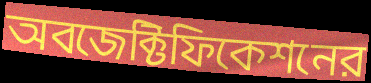
অবজেক্টিফিকেশনের